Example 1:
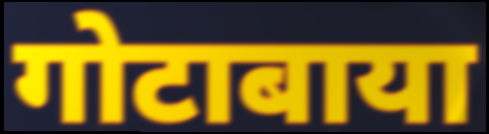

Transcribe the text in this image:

गोटाबाया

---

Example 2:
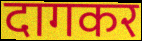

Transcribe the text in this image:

दागकर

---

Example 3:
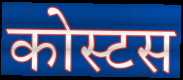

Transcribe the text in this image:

कोस्टस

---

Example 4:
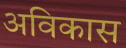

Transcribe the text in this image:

अविकास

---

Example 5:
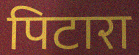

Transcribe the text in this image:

पिटारा